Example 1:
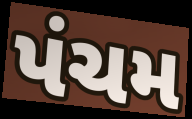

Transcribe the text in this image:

પંચમ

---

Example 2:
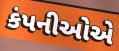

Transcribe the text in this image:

કંપનીઓએ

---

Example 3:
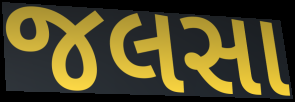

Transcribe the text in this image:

જલસા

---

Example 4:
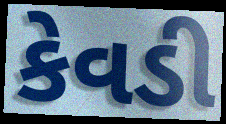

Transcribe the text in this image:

કેવડી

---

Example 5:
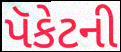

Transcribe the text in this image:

પૅકેટની